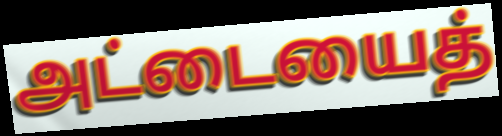
அட்டையைத்